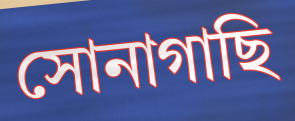
সোনাগাছি